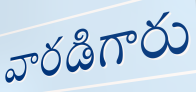
వారడిగారు